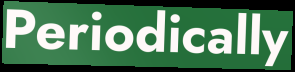
Periodically